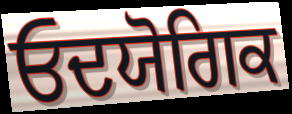
ਓਦਯੋਗਿਕ